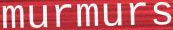
murmurs